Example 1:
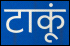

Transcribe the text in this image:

टाकूं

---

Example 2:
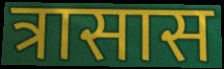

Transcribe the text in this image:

त्रासास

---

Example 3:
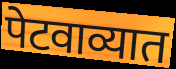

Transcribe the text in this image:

पेटवाव्यात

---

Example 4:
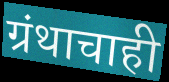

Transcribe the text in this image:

ग्रंथाचाही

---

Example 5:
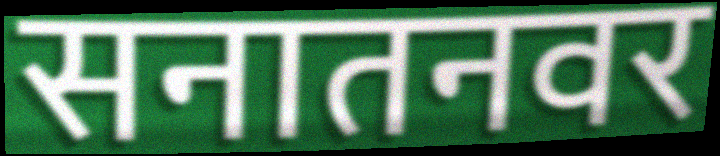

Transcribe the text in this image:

सनातनवर